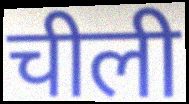
चीली